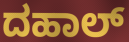
ದಹಾಲ್